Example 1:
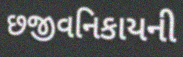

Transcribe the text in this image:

છજીવનિકાયની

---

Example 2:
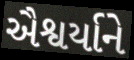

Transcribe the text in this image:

ઐશ્વર્યાને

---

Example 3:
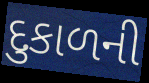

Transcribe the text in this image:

દુકાળની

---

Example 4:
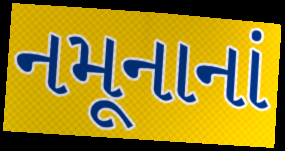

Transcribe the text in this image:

નમૂનાનાં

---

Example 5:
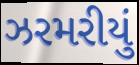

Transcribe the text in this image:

ઝરમરીયું